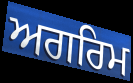
ਅਗਰਿਮ